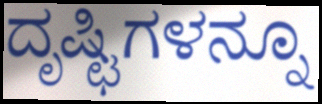
ದೃಷ್ಟಿಗಳನ್ನೂ